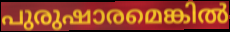
പുരുഷാരമെങ്കിൽ